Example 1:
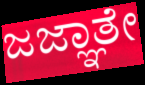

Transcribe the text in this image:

ಜಜ್ಞಾತೇ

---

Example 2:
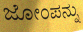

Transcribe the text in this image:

ಜೋಂಪನ್ನು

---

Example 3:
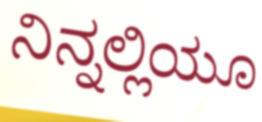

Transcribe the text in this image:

ನಿನ್ನಲ್ಲಿಯೂ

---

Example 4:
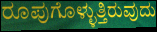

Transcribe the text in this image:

ರೂಪುಗೊಳ್ಳುತ್ತಿರುವುದು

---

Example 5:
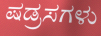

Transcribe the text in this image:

ಷಡ್ರಸಗಳು